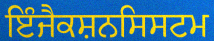
ਇੰਜੈਕਸ਼ਨਸਿਸਟਮ